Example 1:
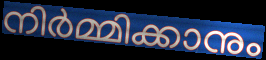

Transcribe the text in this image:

നിർമ്മിക്കാനും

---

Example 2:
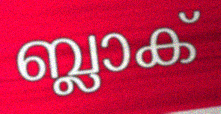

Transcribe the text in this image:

ബ്ലാക്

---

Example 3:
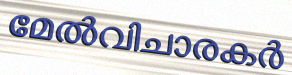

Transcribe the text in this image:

മേൽവിചാരകർ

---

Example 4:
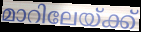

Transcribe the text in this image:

മാറിലേയ്ക്ക്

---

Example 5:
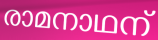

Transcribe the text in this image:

രാമനാഥന്